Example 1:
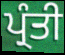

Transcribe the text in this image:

ਪ੍ਰੰਤੀ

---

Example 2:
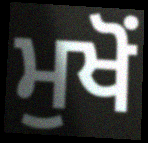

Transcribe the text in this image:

ਮੁਖੋਂ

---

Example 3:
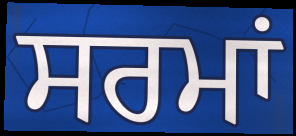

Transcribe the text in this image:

ਸਰਮਾਂ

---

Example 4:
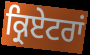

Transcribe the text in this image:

ਕ੍ਰਿਏਟਰਾਂ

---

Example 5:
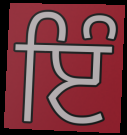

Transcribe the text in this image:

ਇੰ